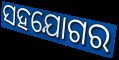
ସହଯୋଗର